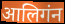
आलिगंन